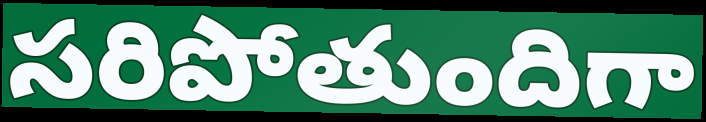
సరిపోతుందిగా